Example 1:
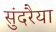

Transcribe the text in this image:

सुंदरैया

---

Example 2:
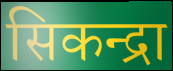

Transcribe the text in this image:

सिकन्द्रा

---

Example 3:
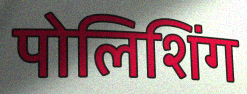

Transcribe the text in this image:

पोलिशिंग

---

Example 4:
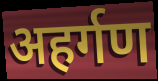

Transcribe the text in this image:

अहर्गण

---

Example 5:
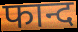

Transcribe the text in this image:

फान्द